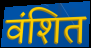
वंशित